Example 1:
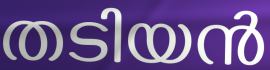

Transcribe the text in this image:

തടിയൻ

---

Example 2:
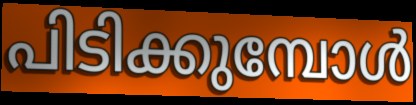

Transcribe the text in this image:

പിടിക്കുമ്പോൾ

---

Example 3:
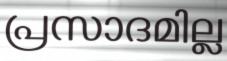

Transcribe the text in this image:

പ്രസാദമില്ല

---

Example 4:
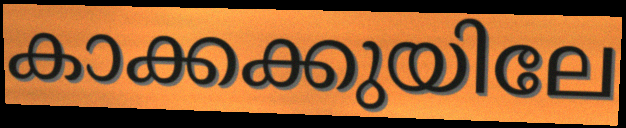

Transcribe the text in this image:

കാക്കക്കുയിലേ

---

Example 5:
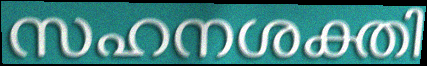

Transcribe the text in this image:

സഹനശക്തി